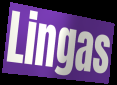
Lingas